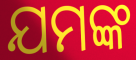
ଯମଙ୍କ